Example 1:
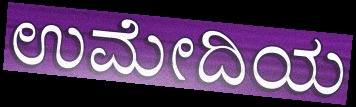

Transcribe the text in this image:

ಉಮೇದಿಯ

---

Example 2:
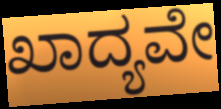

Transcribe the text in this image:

ಖಾದ್ಯವೇ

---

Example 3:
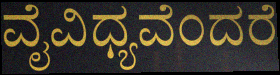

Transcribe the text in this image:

ವೈವಿಧ್ಯವೆಂದರೆ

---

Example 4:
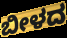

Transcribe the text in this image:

ಬೀಳದ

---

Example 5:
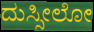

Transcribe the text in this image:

ದುಸ್ಸೀಲೋ